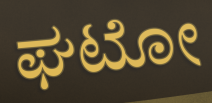
ಘಟೋ